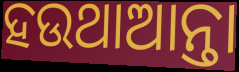
ହଉଥାଆନ୍ତା